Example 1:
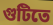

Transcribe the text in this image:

গুটিতে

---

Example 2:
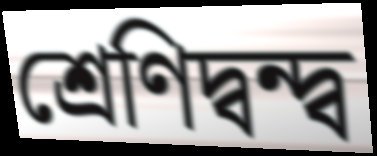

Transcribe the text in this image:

শ্রেণিদ্বন্দ্ব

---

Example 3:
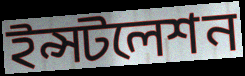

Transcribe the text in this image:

ইন্সটলেশন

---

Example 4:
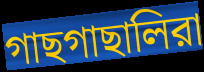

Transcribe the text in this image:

গাছগাছালিরা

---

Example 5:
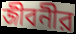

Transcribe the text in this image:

জীবনীর